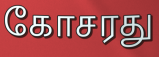
கோசரது